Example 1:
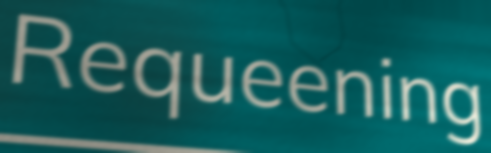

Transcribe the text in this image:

Requeening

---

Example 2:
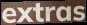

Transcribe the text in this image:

extras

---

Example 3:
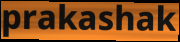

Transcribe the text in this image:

prakashak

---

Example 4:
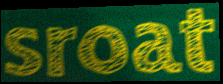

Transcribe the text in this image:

sroat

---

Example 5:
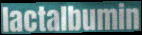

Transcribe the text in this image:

lactalbumin